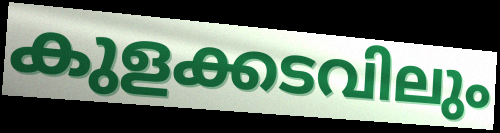
കുളക്കടവിലും